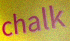
chalk